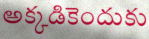
అక్కడికెందుకు